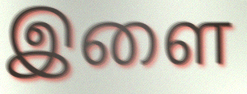
இளை